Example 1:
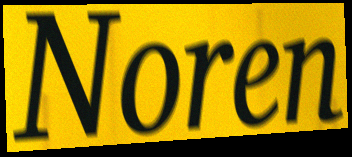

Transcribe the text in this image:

Noren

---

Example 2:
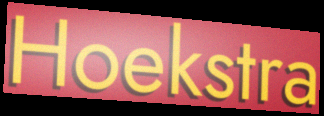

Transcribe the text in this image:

Hoekstra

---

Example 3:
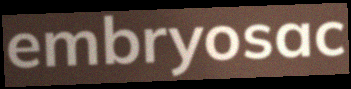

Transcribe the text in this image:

embryosac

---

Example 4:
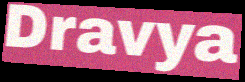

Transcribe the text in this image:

Dravya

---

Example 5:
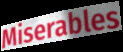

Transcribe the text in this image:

Miserables